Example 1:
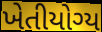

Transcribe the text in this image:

ખેતીયોગ્ય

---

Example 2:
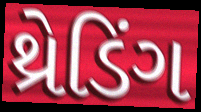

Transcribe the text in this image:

થ્રેડિંગ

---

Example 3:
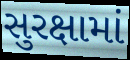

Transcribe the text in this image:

સુરક્ષામાં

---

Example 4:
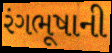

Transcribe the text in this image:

રંગભૂષાની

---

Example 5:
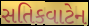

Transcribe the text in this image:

સતિકવાટેન